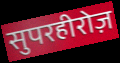
सुपरहीरोज़